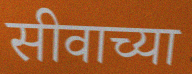
सीवाच्या